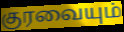
குரவையும்